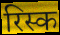
रिस्क